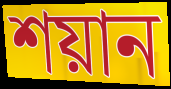
শয়ান